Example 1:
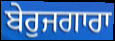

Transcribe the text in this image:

ਬੇਰੁਜਗਾਰਾ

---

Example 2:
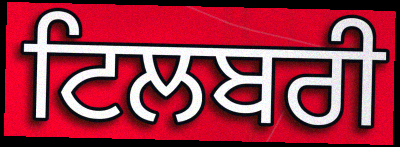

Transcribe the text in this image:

ਟਿਲਬਰੀ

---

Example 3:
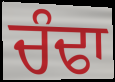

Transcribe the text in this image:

ਚੰਢਾ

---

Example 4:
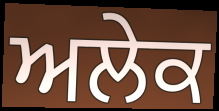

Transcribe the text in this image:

ਅਲੇਕ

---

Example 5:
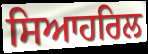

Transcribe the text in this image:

ਸਿਆਹਰਿਲ